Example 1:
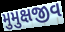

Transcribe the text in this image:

મુમુક્ષજીવ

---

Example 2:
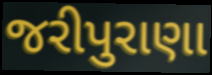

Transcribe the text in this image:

જરીપુરાણા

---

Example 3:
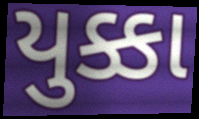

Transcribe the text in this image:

યુક્કા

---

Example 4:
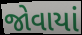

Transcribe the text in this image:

જોવાયાં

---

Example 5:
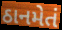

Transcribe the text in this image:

ઠાનમેતં